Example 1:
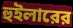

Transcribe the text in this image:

হুইলারের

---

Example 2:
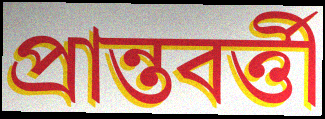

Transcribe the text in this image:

প্রান্তবর্ত্তী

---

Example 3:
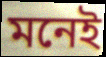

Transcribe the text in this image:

মনেই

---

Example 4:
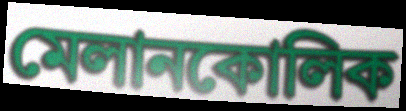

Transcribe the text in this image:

মেলানকোলিক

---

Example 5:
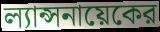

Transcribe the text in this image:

ল্যান্সনায়েকের